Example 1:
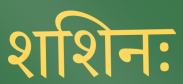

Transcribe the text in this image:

शशिनः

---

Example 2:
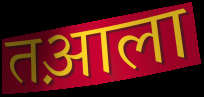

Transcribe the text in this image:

तआ़ला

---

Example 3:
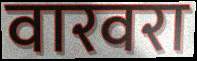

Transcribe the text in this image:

वारवरा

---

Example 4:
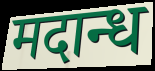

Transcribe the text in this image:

मदान्ध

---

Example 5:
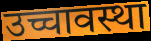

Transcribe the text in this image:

उच्चावस्था